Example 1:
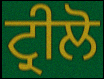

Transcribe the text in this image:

ਟ੍ਰੀਲੋ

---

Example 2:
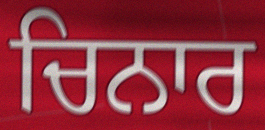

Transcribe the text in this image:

ਚਿਨਾਰ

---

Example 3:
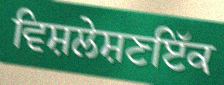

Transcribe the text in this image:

ਵਿਸ਼ਲੇਸ਼ਣਇੱਕ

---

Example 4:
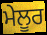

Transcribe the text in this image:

ਮੇਲੂਰ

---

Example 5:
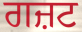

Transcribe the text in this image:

ਗਜ਼ਟ